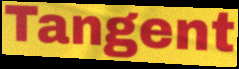
Tangent